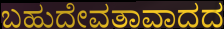
ಬಹುದೇವತಾವಾದದ